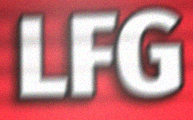
LFG